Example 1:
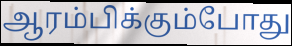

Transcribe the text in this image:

ஆரம்பிக்கும்போது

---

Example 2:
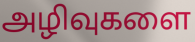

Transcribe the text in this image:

அழிவுகளை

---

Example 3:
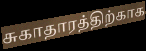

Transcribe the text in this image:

சுகாதாரத்திற்காக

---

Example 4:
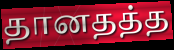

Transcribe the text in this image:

தானதத்த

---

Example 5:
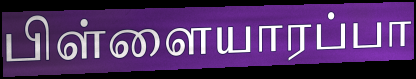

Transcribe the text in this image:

பிள்ளையாரப்பா